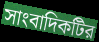
সাংবাদিকটির